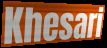
Khesari